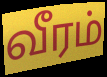
வீரம்